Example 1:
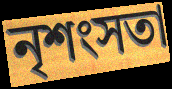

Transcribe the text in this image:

নৃশংসতা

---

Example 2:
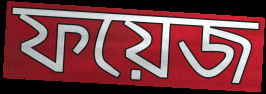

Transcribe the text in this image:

ফয়েজ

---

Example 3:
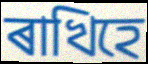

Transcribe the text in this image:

ৰাখিহে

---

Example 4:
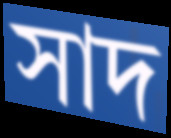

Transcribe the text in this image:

সাদ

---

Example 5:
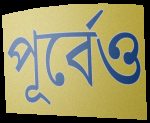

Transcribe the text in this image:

পূৰ্বেও